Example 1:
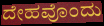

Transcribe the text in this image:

ದೇಹವೊಂದು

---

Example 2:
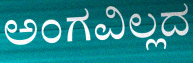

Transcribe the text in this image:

ಅಂಗವಿಲ್ಲದ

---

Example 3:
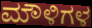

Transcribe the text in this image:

ಮೌಳಿಗಳ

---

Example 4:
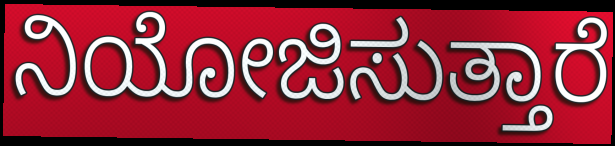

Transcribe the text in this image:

ನಿಯೋಜಿಸುತ್ತಾರೆ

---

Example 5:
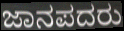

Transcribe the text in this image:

ಜಾನಪದರು